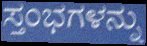
ಸ್ತಂಭಗಳನ್ನು